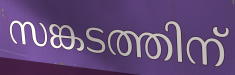
സങ്കടത്തിന്